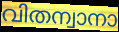
വിതന്വാനാ